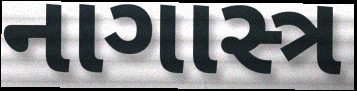
નાગાસ્ત્ર